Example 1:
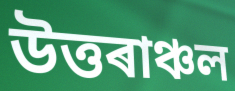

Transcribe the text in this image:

উত্তৰাঞ্চল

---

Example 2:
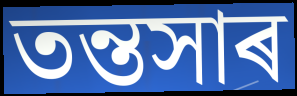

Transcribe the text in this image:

তন্তসাৰ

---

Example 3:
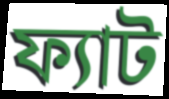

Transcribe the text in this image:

ফ্যাট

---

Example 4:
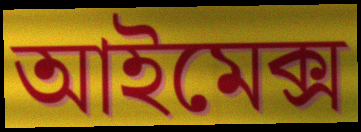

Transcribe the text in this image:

আইমেক্স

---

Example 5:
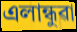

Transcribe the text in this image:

এলান্ধুৱা